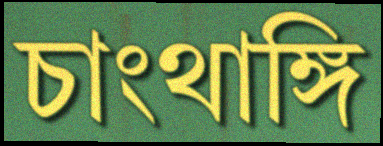
চাংথাঙ্গি